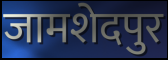
जामशेदपुर